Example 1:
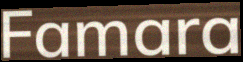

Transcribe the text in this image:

Famara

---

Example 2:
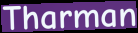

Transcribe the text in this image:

Tharman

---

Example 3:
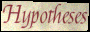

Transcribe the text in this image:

Hypotheses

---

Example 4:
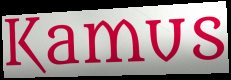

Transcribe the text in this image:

Kamus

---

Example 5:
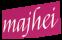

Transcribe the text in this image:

majhei